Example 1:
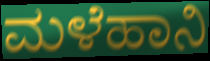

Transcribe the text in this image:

ಮಳೆಹಾನಿ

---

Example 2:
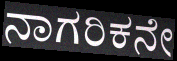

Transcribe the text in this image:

ನಾಗರಿಕನೇ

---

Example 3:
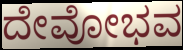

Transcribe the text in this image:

ದೇವೋಭವ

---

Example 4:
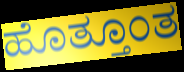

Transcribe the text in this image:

ಹೊತ್ತೂಂತ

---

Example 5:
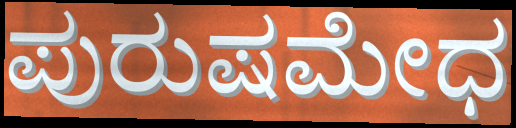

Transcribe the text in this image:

ಪುರುಷಮೇಧ